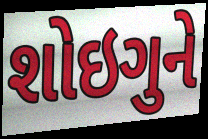
શોઇગુને